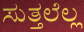
ಸುತ್ತಲೆಲ್ಲ